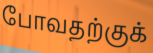
போவதற்குக்